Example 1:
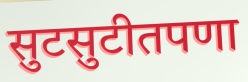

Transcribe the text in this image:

सुटसुटीतपणा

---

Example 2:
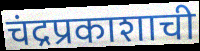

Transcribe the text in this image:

चंद्रप्रकाशाची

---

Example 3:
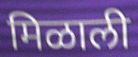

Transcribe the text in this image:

मिळाली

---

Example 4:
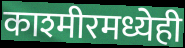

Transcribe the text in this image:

काश्‍मीरमध्येही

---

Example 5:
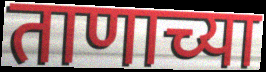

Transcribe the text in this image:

ताणाच्या